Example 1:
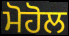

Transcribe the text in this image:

ਮੋਹੋਲ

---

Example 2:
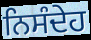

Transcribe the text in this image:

ਨਿਸੰਦੇਹ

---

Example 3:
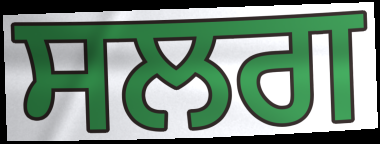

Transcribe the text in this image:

ਸਲਗ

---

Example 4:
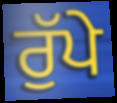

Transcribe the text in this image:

ਰੁੱਪੇ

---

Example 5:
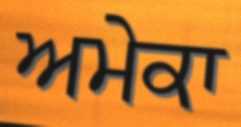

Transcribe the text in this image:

ਅਮੇਕਾ